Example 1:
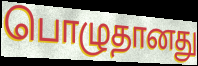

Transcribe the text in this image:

பொழுதானது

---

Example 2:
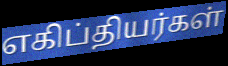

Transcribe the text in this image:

எகிப்தியர்கள்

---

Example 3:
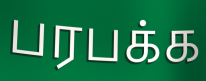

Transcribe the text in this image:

பரபக்க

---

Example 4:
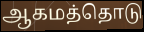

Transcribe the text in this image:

ஆகமத்தொடு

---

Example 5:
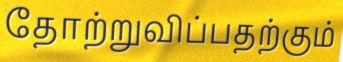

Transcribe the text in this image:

தோற்றுவிப்பதற்கும்